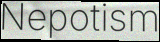
Nepotism